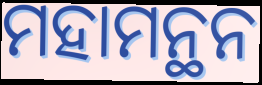
ମହାମନ୍ଥନ